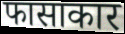
फासाकार